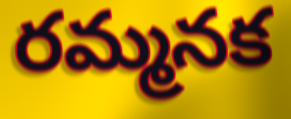
రమ్మనక